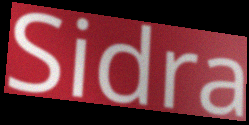
Sidra